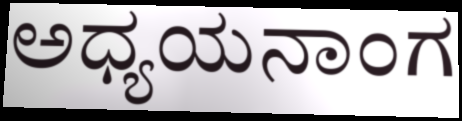
ಅಧ್ಯಯನಾಂಗ